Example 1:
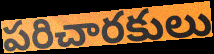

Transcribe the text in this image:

పరిచారకులు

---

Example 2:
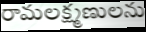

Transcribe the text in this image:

రామలక్ష్మణులను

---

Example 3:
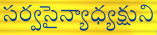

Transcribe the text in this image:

సర్వసైన్యాధ్యక్షుని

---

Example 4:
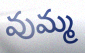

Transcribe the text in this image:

వుమ్మ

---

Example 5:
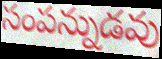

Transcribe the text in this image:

సంపన్నుడవు